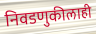
निवडणुकीलाही